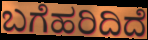
ಬಗೆಹರಿದಿದೆ